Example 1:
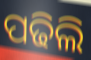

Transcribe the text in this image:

ପଢିଲି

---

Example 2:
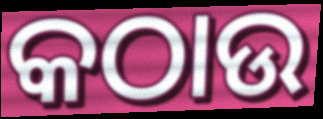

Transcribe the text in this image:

କଠାଉ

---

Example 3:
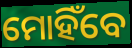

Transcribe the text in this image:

ମୋହିଁବେ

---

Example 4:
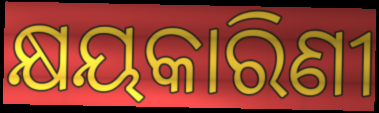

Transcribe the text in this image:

କ୍ଷୟକାରିଣୀ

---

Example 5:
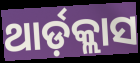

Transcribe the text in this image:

ଥାର୍ଡ଼କ୍ଲାସ